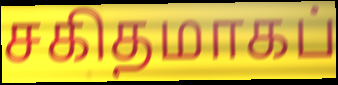
சகிதமாகப்